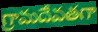
గ్రామదేవతగా